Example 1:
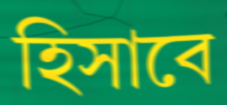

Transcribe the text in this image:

হিসাবে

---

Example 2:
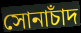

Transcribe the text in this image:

সোনাচাঁদ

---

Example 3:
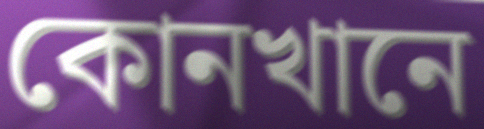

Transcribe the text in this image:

কোনখানে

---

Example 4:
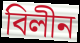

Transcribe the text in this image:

বিলীন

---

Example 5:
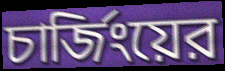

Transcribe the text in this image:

চার্জিংয়ের